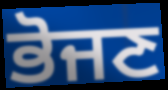
ਭੋਜਣ